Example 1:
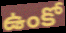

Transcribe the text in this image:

ఉంకో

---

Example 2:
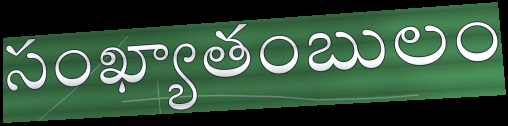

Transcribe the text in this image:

సంఖ్యాతంబులం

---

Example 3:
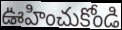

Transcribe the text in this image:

ఊహించుకోండి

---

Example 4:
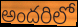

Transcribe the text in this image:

అందరిలో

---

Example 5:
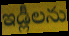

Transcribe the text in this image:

ఇడ్లీలను